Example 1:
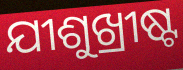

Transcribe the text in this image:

ଯୀଶୁଖ୍ରୀଷ୍ଟ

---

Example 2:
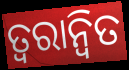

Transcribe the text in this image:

ତ୍ଵରାନ୍ବିତ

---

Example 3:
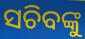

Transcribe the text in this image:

ସଚିବଙ୍କୁ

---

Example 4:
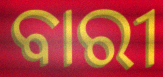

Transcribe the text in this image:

ବାରୀ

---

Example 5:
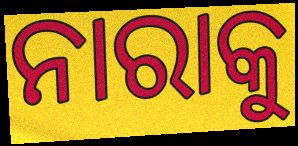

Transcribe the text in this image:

ନାରାକୁ